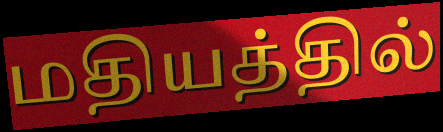
மதியத்தில்